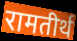
रामतीर्थ